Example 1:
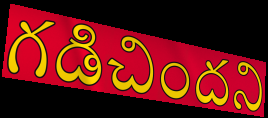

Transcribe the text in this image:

గడిచిందని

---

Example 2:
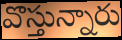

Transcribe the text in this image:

వొస్తున్నారు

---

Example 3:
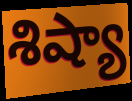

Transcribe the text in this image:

శిష్యా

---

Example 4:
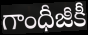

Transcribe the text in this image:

గాంధీజీకీ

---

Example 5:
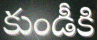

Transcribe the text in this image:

కుండీకి